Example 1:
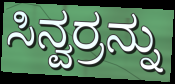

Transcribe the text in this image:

ಸಿನ್ವರ್ರನ್ನು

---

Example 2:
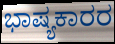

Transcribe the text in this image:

ಭಾಷ್ಯಕಾರರ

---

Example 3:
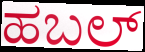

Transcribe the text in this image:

ಹಬಲ್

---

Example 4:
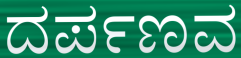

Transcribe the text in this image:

ದರ್ಪಣವ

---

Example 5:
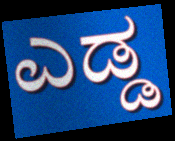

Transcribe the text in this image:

ಎಡ್ಡ